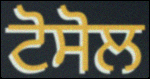
ਟੋਸੋਲ